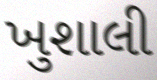
ખુશાલી